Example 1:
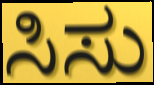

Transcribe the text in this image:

ಸಿಸು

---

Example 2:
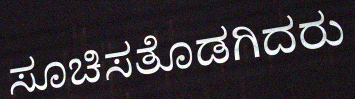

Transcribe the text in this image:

ಸೂಚಿಸತೊಡಗಿದರು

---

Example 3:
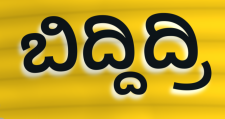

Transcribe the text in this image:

ಬಿದ್ದಿದ್ರಿ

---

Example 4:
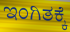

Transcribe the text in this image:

ಇಂಗಿತಕ್ಕೆ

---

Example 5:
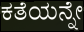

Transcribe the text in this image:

ಕತೆಯನ್ನೇ